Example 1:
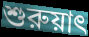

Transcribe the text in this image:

শুরুয়াৎ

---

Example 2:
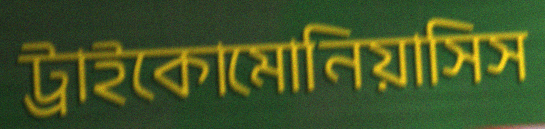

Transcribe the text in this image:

ট্রাইকোমোনিয়াসিস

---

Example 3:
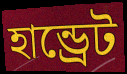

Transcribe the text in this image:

হান্ড্রেট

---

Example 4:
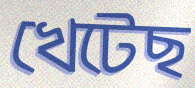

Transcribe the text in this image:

খেটেছ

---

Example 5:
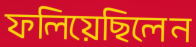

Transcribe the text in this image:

ফলিয়েছিলেন